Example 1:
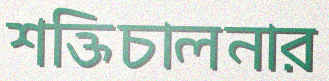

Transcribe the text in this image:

শক্তিচালনার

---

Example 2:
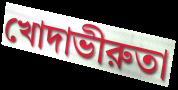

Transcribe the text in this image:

খোদাভীরুতা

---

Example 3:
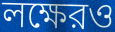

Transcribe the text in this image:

লক্ষেরও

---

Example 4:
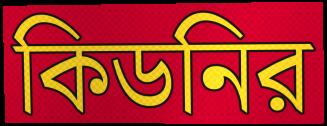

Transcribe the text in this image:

কিডনির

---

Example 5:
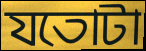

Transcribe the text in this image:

যতোটা